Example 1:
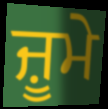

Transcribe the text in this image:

ਜ਼ੂਮੇ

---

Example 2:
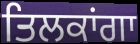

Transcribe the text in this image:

ਤਿਲਕਾਂਗਾ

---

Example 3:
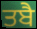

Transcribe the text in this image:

ਤਬੈ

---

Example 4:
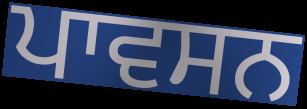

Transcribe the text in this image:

ਪਾਵਸਨ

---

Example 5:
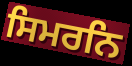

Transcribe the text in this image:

ਸਿਮਰਨਿ